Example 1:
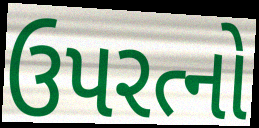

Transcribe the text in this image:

ઉપરત્નો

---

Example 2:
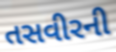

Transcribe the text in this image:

તસવીરની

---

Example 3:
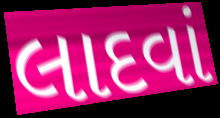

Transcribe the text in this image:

લાદવાં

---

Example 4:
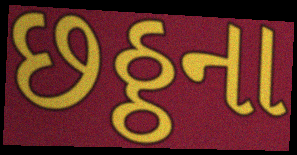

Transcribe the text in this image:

છઠ્ઠના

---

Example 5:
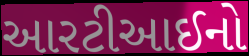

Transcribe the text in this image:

આરટીઆઈનો